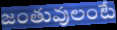
జంతువులంటే